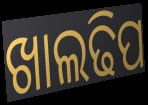
ଖାଲଢିପ